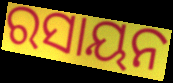
ରସାୟନ